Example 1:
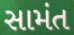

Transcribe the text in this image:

સામંત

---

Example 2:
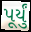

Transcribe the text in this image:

પૂર્યું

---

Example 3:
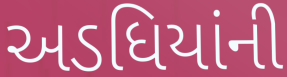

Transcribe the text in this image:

અડધિયાંની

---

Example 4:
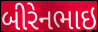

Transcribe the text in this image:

બીરેનભાઇ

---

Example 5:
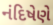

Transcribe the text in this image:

નંદિષેણે